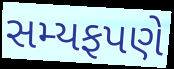
સમ્યફપણે